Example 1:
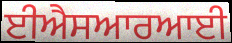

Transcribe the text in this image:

ਈਐਸਆਰਆਈ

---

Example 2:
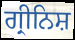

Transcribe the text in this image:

ਗ੍ਰੀਨਿਸ਼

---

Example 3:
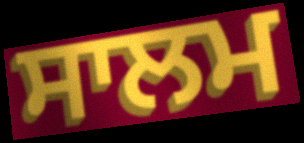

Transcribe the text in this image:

ਸਾਲਮ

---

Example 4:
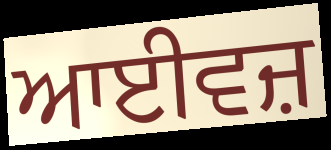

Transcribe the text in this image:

ਆਈਵਜ਼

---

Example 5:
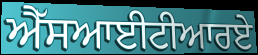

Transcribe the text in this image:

ਐੱਸਆਈਟੀਆਰਏ